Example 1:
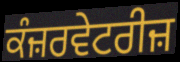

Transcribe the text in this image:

ਕੰਜ਼ਰਵੇਟਰੀਜ਼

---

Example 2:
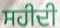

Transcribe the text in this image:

ਸਹੀਦੀ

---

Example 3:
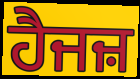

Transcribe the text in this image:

ਹੈਜਜ਼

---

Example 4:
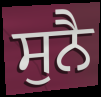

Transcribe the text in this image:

ਸੁਨੈ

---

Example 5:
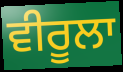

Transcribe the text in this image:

ਵੀਰੂਲਾ